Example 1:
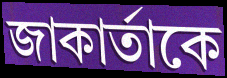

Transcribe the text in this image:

জাকার্তাকে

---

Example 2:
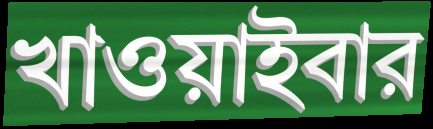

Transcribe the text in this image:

খাওয়াইবার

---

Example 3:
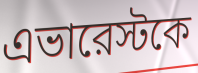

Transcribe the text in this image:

এভারেস্টকে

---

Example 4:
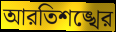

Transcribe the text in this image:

আরতিশঙ্খের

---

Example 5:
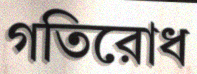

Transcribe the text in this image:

গতিরোধ